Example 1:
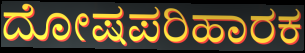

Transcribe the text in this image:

ದೋಷಪರಿಹಾರಕ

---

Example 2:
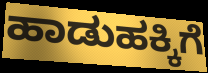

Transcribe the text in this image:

ಹಾಡುಹಕ್ಕಿಗೆ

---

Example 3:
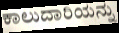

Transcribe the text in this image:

ಕಾಲುದಾರಿಯನ್ನು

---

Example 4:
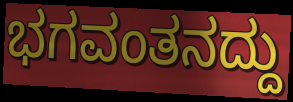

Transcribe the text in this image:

ಭಗವಂತನದ್ದು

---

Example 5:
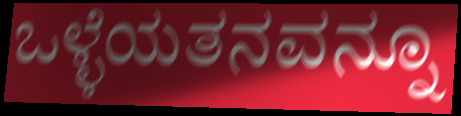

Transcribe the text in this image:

ಒಳ್ಳೆಯತನವನ್ನೂ